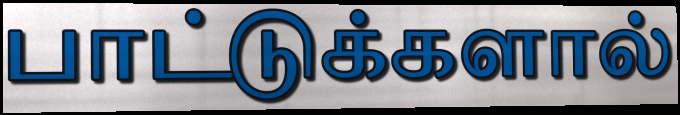
பாட்டுக்களால்